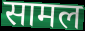
सामल